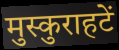
मुस्कुराहटें